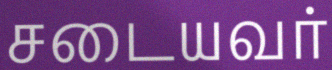
சடையவர்